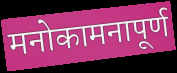
मनोकामनापूर्ण